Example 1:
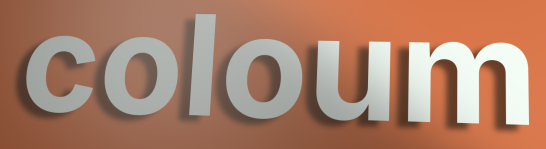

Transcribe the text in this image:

coloum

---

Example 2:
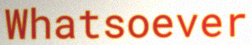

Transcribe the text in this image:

Whatsoever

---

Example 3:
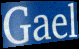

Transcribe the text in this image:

Gael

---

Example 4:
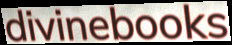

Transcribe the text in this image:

divinebooks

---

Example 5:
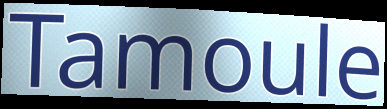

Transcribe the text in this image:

Tamoule